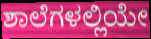
ಶಾಲೆಗಳಲ್ಲಿಯೇ